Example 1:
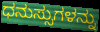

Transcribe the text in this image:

ಧನುಸ್ಸುಗಳನ್ನು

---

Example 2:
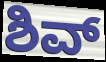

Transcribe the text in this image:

ಶಿವ್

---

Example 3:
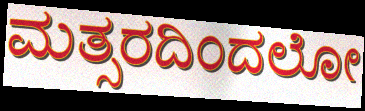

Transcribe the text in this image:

ಮತ್ಸರದಿಂದಲೋ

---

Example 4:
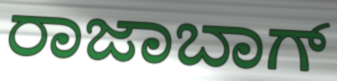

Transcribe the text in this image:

ರಾಜಾಬಾಗ್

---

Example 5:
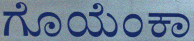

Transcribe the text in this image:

ಗೊಯೆಂಕಾ